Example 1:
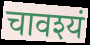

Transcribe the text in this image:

चावश्यं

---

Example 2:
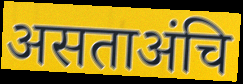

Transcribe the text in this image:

असताअंचि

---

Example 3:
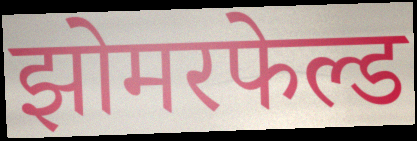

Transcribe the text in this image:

झोमरफेल्ड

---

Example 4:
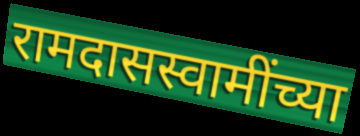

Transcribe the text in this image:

रामदासस्वामींच्या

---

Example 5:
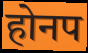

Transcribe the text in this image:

होनप